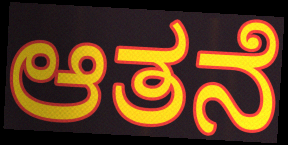
ಆತನೆ